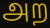
அற